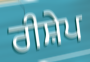
ਰੀਸ਼ੇਪ